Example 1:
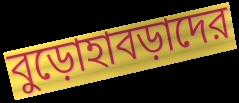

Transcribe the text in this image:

বুড়োহাবড়াদের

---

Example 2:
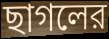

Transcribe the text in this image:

ছাগলের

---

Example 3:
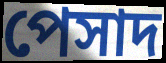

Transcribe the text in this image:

পেসাদ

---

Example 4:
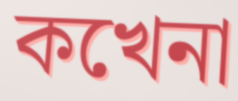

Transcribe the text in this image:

কখেনা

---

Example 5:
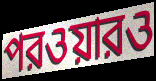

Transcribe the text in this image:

পরওয়ারও